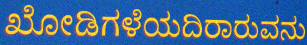
ಖೋಡಿಗಳೆಯದಿರಾರುವನು